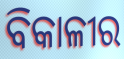
ବିକାଳୀର